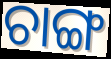
ଚାଙ୍ଗ